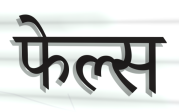
फेल्स